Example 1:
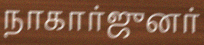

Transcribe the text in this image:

நாகார்ஜுனர்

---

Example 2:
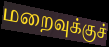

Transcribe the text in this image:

மறைவுக்குச்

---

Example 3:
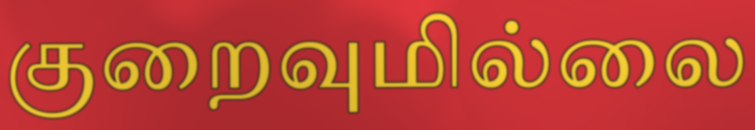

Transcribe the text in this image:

குறைவுமில்லை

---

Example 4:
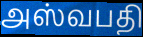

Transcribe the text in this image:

அஸ்வபதி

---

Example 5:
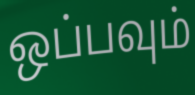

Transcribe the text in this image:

ஒப்பவும்